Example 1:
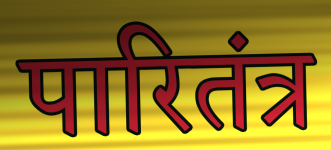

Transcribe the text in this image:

पारितंत्र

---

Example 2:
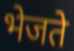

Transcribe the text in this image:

भेजते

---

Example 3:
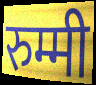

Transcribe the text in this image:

रुम्मी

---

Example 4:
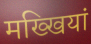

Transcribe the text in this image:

मख्खियां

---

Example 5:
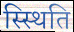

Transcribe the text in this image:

स्स्थिति